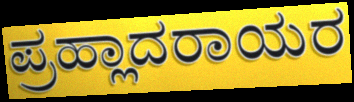
ಪ್ರಹ್ಲಾದರಾಯರ